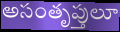
అసంతృప్తులూ